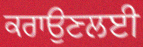
ਕਰਾਉਣਲਈ